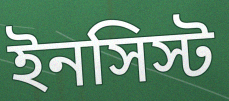
ইনসিস্ট